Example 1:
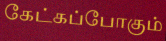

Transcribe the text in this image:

கேட்கப்போகும்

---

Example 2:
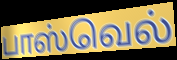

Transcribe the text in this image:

பாஸ்வெல்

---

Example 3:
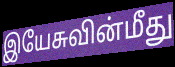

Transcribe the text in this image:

இயேசுவின்மீது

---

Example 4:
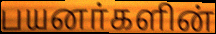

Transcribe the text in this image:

பயனர்களின்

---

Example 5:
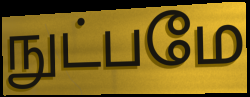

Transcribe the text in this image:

நுட்பமே